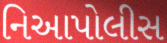
નિઆપોલીસ